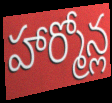
హార్మోన్ల